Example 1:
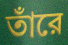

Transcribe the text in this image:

তাঁরে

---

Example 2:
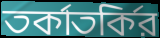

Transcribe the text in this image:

তর্কাতর্কির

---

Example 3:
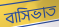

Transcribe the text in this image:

বাসিভাত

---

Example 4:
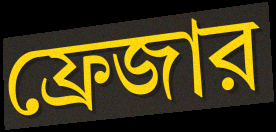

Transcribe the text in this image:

ফ্রেজার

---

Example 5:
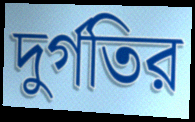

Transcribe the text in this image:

দুর্গতির